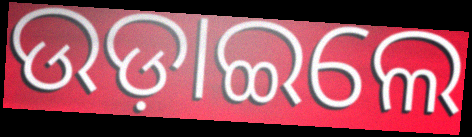
ଉଡ଼ାଇଲେ